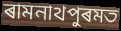
ৰামনাথপুৰমত